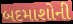
બદમાશોની